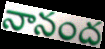
నానంద